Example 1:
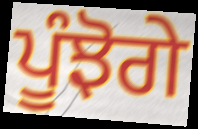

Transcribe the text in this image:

ਪੂੰਝੋਗੇ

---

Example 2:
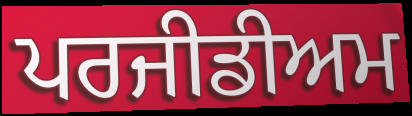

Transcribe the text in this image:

ਪਰਜੀਡੀਅਮ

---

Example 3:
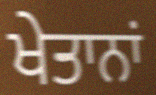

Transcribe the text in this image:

ਖੇਤਾਨਾਂ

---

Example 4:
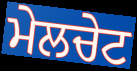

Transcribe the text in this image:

ਮੇਲਚੇਟ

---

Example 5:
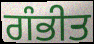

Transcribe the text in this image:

ਗੰਭੀਤ